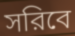
সরিবে